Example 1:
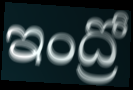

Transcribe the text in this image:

ఇంద్రో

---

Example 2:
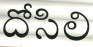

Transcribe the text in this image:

దోసిలి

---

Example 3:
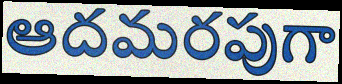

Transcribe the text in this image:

ఆదమరపుగా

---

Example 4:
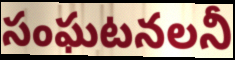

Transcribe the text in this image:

సంఘటనలనీ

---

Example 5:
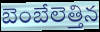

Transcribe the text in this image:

బెంబేలెత్తిన